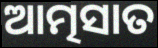
ଆତ୍ମସାତ